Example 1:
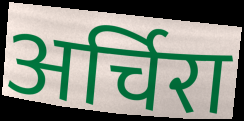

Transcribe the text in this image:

अर्चिरा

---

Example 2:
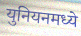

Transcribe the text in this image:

युनियनमध्ये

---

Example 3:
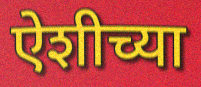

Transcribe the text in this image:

ऐशीच्या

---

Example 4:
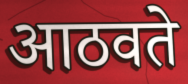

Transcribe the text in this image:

आठवते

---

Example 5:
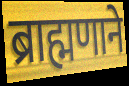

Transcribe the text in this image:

ब्राह्मणाने